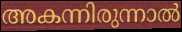
അകന്നിരുന്നാൽ